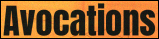
Avocations